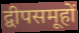
द्वीपसमूहों